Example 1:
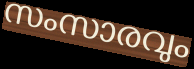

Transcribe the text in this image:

സംസാരവും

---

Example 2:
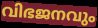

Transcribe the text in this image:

വിഭജനവും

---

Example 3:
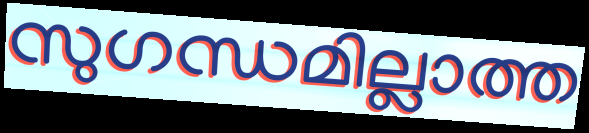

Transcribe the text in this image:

സുഗന്ധമില്ലാത്ത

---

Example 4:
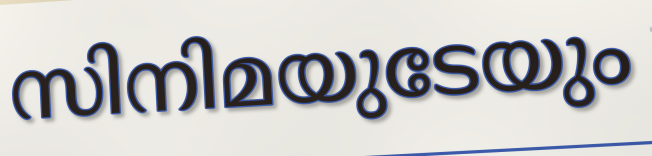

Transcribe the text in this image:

സിനിമയുടേയും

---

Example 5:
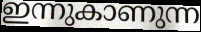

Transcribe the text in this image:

ഇന്നുകാണുന്ന